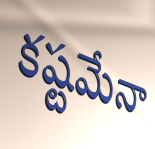
కష్టమేనా